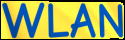
WLAN